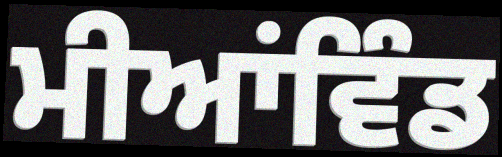
ਮੀਆਂਵਿੰਡ